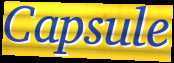
Capsule